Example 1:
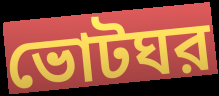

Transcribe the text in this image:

ভোটঘর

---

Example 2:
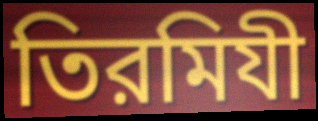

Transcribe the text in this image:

তিরমিযী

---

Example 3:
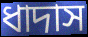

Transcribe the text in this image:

ধাদাস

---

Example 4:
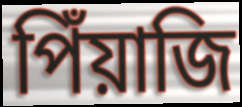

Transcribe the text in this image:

পিঁয়াজি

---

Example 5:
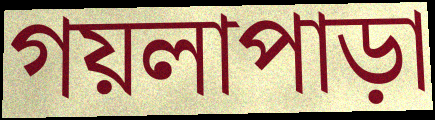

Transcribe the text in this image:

গয়লাপাড়া